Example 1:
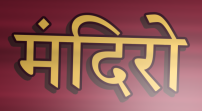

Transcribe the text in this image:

मंदिरो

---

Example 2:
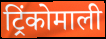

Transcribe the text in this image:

ट्रिंकोमाली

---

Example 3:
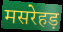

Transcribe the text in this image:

मसरेहड़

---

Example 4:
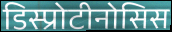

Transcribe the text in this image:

डिस्प्रोटीनोसिस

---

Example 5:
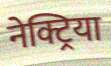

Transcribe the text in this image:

नेक्ट्रिया